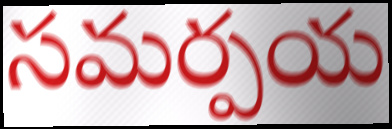
సమర్పయ